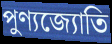
পুণ্যজ্যোতি